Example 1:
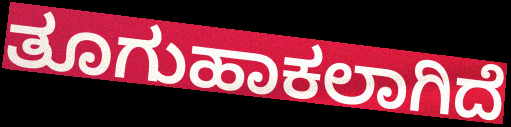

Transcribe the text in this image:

ತೂಗುಹಾಕಲಾಗಿದೆ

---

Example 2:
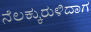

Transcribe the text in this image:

ನೆಲಕ್ಕುರುಳಿದಾಗ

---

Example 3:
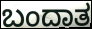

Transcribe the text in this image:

ಬಂದಾತ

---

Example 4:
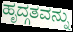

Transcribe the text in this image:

ಹೃದ್ಗತವನ್ನು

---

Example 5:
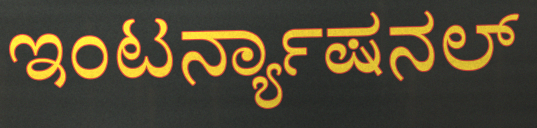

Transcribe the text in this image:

ಇಂಟರ್ನ್ಯಾಷನಲ್